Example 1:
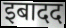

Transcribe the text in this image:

इबादद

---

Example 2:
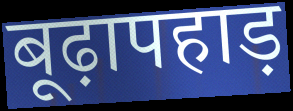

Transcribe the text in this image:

बूढ़ापहाड़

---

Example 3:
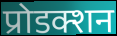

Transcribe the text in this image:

प्रोडक्शन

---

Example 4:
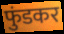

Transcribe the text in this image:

फुंडकर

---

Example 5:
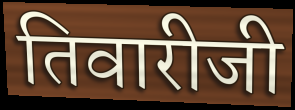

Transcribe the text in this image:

तिवारीजी